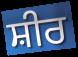
ਸ਼ੀਰ